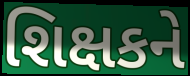
શિક્ષકને